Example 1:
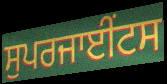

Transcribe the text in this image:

ਸੁਪਰਜਾਈਂਟਸ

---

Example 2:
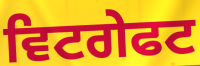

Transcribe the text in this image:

ਵਿਟਗੇਫਟ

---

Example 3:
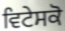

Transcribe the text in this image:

ਵਿਟੇਸਕੋ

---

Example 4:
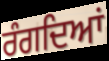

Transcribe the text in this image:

ਰੰਗਦਿਆਂ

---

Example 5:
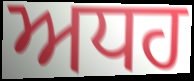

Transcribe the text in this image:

ਅਧਹ